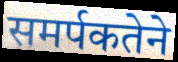
समर्पकतेने